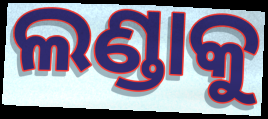
ଲଣ୍ଡାକୁ